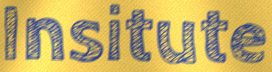
Insitute